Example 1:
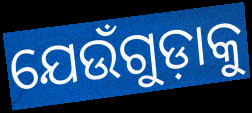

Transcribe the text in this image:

ଯେଉଁଗୁଡ଼ାକୁ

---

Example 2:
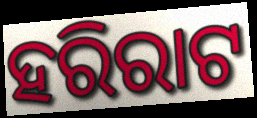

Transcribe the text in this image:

ହରିରାଟ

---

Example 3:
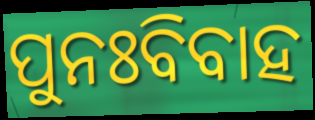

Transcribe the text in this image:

ପୁନଃବିବାହ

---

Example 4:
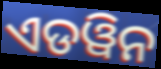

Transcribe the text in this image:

ଏଡୱିନ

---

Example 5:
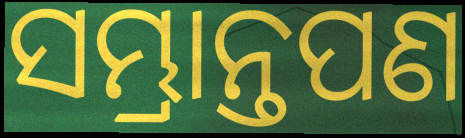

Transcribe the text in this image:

ସମ୍ଭ୍ରାନ୍ତପଣ